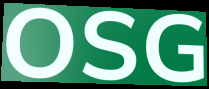
OSG